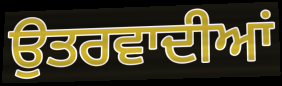
ਉਤਰਵਾਦੀਆਂ